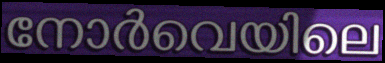
നോർവെയിലെ